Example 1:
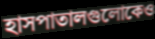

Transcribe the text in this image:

হাসপাতালগুলোকেও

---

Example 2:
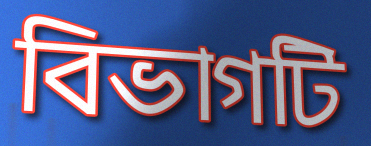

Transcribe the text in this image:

বিভাগটি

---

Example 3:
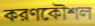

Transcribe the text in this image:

করণকৌশল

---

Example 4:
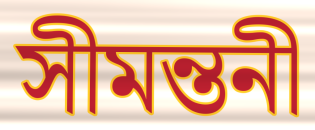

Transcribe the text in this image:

সীমন্তনী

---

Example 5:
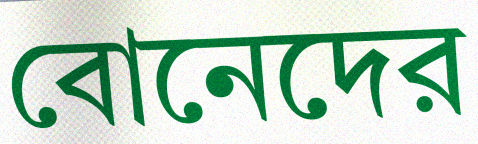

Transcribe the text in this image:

বোনেদের